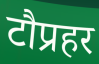
टौप्रहर